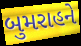
બુમરાહને